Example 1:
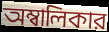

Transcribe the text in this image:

অম্বালিকার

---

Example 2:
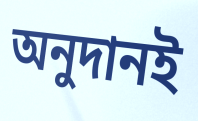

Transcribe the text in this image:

অনুদানই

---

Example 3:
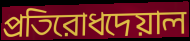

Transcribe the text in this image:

প্রতিরোধদেয়াল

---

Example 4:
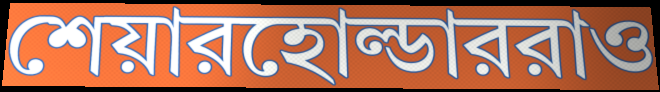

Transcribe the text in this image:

শেয়ারহোল্ডাররাও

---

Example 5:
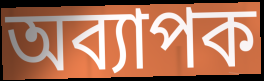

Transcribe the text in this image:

অব্যাপক